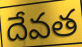
దేవత